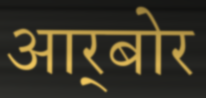
आर्बोर